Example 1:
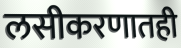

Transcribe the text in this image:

लसीकरणातही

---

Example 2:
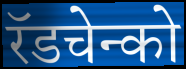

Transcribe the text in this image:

रॅडचेन्को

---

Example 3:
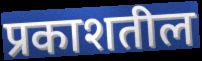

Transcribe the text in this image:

प्रकाशतील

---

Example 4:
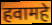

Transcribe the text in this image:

हवामहे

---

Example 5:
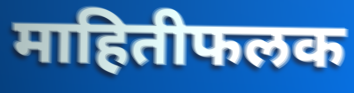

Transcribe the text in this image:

माहितीफलक